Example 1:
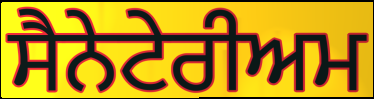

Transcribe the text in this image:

ਸੈਨੇਟੇਰੀਅਮ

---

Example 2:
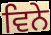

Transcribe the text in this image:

ਵਿਨੇ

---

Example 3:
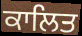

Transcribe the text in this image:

ਕਾਲਿਤ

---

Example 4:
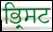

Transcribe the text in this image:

ਭ੍ਰਿਸਟ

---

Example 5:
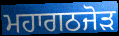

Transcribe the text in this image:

ਮਹਾਗਠਜੋੜ